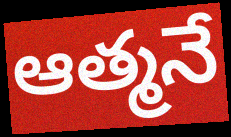
ఆత్మనే